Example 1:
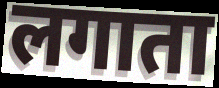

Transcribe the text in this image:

लगाता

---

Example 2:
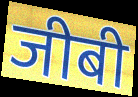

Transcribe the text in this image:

जीबी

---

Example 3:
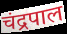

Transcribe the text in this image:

चंद्रपाल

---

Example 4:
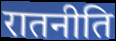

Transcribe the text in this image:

रातनीति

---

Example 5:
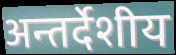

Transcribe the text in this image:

अन्तर्देशीय